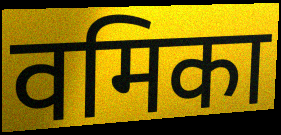
वमिका